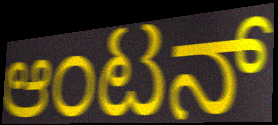
ಆಂಟನ್